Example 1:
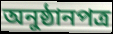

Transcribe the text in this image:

অনুষ্ঠানপত্র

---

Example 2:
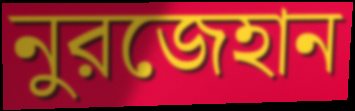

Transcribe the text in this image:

নুরজেহান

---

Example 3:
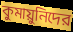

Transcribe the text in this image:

কুমায়ুনিদের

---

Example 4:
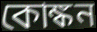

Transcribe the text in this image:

কোঙ্কন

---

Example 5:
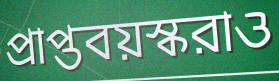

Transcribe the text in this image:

প্রাপ্তবয়স্করাও